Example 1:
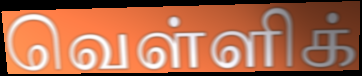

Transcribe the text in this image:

வெள்ளிக்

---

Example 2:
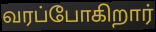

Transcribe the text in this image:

வரப்போகிறார்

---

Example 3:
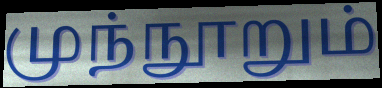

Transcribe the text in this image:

முந்நூறும்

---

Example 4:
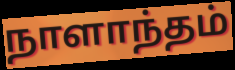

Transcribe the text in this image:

நாளாந்தம்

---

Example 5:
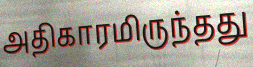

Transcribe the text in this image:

அதிகாரமிருந்தது